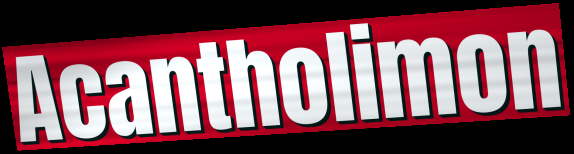
Acantholimon